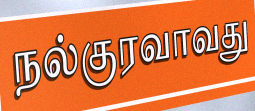
நல்குரவாவது